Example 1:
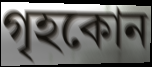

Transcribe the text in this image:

গৃহকোন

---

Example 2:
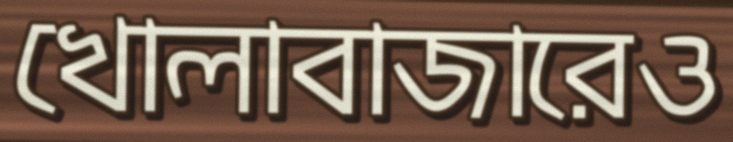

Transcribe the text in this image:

খোলাবাজারেও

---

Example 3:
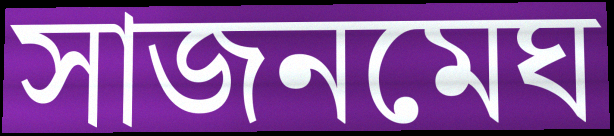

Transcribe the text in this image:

সাজনমেঘ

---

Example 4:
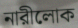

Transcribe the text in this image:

নারীলোক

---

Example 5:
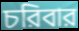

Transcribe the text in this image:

চরিবার